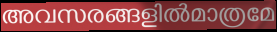
അവസരങ്ങളിൽമാത്രമേ